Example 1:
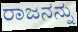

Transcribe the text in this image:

ರಾಜನನ್ನು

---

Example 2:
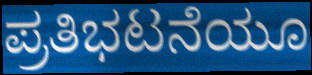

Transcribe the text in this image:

ಪ್ರತಿಭಟನೆಯೂ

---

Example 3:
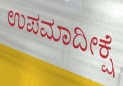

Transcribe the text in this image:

ಉಪಮಾದೀಕ್ಷೆ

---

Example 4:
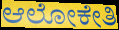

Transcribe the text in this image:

ಆಲೋಕೇತಿ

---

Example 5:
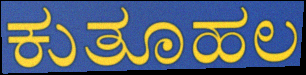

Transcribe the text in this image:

ಕುತೂಹಲ